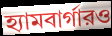
হ্যামবার্গারও